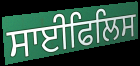
ਸਾਈਫਿਲਿਸ